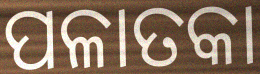
ପଳାତକା